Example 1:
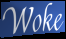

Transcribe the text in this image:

Woke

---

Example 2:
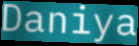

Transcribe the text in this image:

Daniya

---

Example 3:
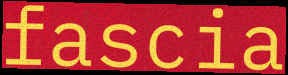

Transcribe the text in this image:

fascia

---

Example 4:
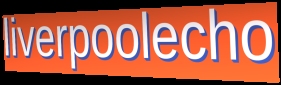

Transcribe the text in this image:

liverpoolecho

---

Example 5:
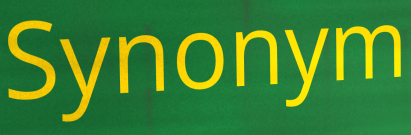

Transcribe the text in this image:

Synonym